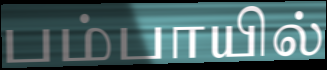
பம்பாயில்